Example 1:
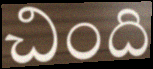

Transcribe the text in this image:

చింది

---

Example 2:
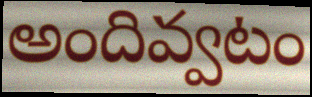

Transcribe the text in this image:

అందివ్వటం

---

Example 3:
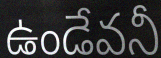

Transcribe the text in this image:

ఉండేవనీ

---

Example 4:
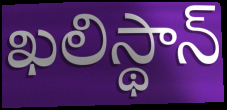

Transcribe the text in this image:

ఖలిస్థాన్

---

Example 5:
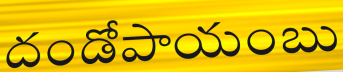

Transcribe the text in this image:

దండోపాయంబు